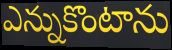
ఎన్నుకొంటాను